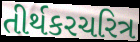
તીર્થકરચરિત્ર